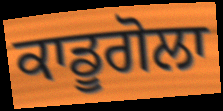
ਕਾਡੂਗੋਲਾ